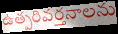
ఉత్పరివర్తనాలను